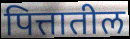
पित्तातील